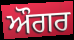
ਔਗਰ